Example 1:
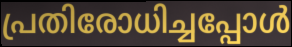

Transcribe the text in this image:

പ്രതിരോധിച്ചപ്പോൾ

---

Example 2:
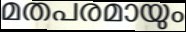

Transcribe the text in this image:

മതപരമായും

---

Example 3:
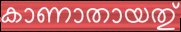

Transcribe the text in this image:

കാണാതായതു്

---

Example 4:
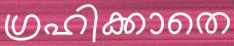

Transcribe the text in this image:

ഗ്രഹിക്കാതെ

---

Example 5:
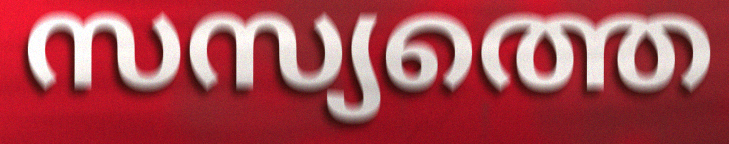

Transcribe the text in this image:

സസ്യത്തെ